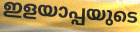
ഇളയാപ്പയുടെ